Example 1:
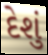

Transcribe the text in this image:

દેશું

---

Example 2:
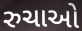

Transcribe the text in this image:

રુચાઓ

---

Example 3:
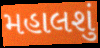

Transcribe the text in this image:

મહાલશું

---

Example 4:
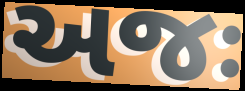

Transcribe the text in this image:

અજઃ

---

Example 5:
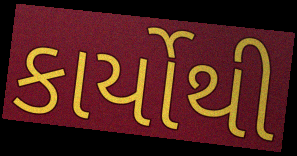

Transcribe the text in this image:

કાર્યોથી